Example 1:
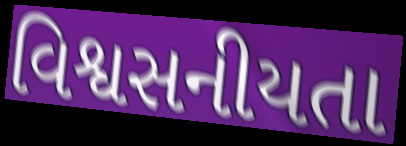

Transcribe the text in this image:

વિશ્વસનીયતા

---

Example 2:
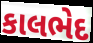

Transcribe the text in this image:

કાલભેદ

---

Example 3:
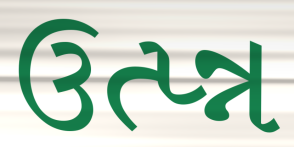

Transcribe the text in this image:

ઉત્પ્ન્ન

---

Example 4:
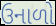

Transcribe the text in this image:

ઉનાળો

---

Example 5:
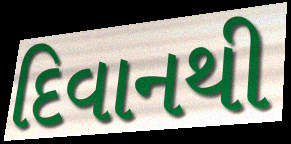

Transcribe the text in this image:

દિવાનથી